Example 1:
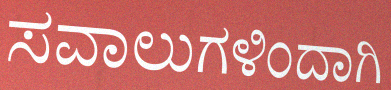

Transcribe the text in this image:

ಸವಾಲುಗಳಿಂದಾಗಿ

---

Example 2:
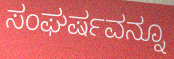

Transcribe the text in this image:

ಸಂಘರ್ಷವನ್ನೂ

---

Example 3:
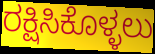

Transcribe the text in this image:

ರಕ್ಷಿಸಿಕೊಳ್ಳಲು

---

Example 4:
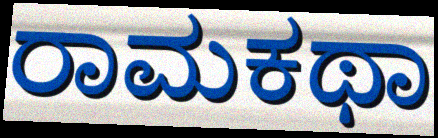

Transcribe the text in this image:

ರಾಮಕಥಾ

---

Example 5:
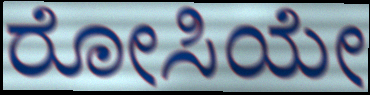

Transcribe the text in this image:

ರೋಸಿಯೇ